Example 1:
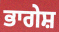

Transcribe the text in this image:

ਭਾਗੇਸ਼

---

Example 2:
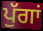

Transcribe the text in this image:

ਪੁੱਗਾਂ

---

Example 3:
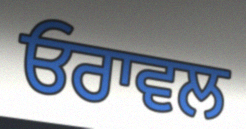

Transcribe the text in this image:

ਓਰਾਵਲ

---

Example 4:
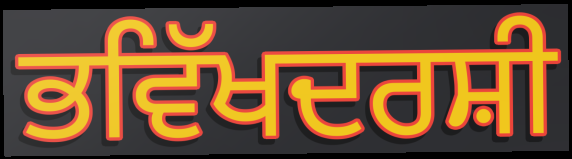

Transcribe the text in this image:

ਭਵਿੱਖਦਰਸ਼ੀ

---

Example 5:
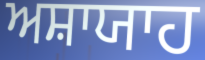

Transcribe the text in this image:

ਅਸ਼ਾਯਾਹ